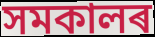
সমকালৰ